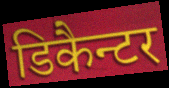
डिकैन्टर